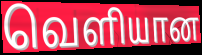
வெளியான